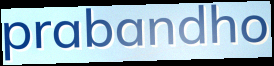
prabandho